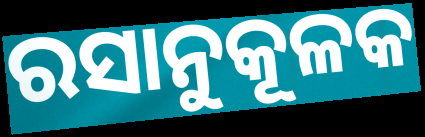
ରସାନୁକୂଳକ